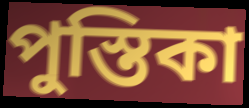
পুস্তিকা